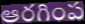
ఆరగింప